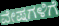
ವೇಷಗಳಿಗೆ